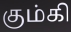
கும்கி